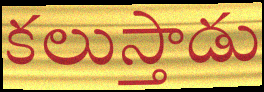
కలుస్తాడు